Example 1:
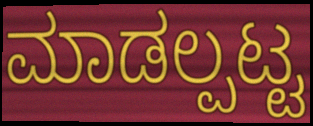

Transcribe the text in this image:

ಮಾಡಲ್ಪಟ್ಟ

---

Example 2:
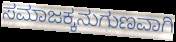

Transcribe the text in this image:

ಸಮಾಜಕ್ಕನುಗುಣವಾಗಿ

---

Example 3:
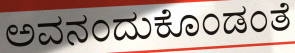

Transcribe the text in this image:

ಅವನಂದುಕೊಂಡಂತೆ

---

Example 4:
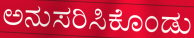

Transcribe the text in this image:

ಅನುಸರಿಸಿಕೊಂಡು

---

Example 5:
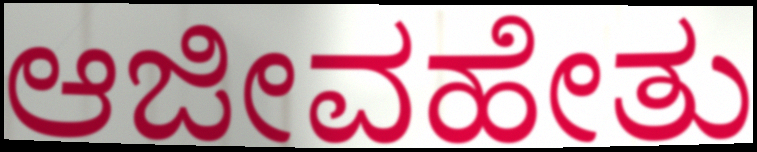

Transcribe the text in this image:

ಆಜೀವಹೇತು